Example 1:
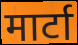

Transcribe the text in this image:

मार्टा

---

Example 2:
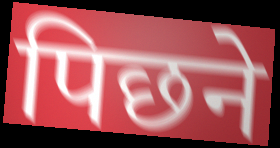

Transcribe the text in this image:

पिछने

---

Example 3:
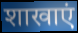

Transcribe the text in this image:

शाखाएं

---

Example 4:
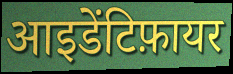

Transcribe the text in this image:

आइडेंटिफ़ायर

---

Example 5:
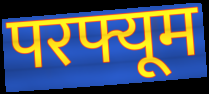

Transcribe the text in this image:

परफ्यूम